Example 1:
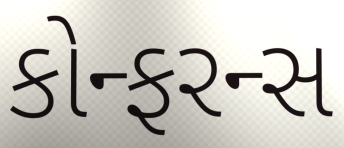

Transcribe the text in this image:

કોન્ફરન્સ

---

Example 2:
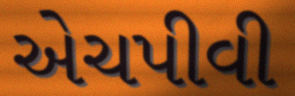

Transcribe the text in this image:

એચપીવી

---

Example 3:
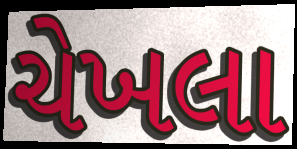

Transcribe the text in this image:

ચેખલા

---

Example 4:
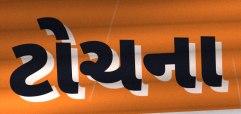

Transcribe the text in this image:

ટોચના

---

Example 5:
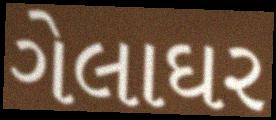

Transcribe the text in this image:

ગેલાઘર